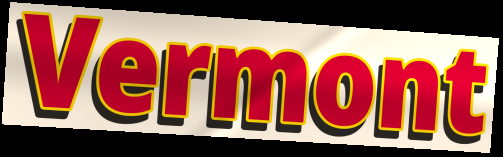
Vermont